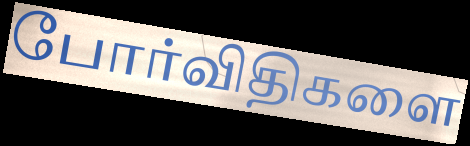
போர்விதிகளை